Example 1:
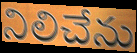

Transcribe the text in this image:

నిలిచేను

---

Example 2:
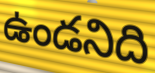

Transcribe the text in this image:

ఉండనిది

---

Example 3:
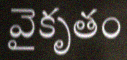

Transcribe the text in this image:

వైకృతం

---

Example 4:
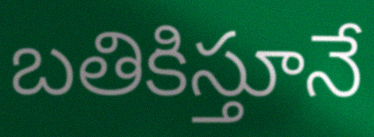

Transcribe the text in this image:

బతికిస్తూనే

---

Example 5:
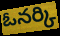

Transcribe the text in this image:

ఓనర్కి